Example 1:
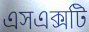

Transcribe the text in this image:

এসএক্সটি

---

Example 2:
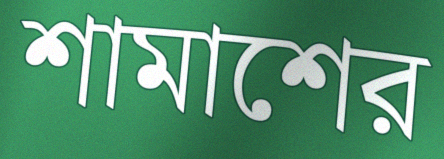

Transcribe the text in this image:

শামাশের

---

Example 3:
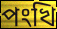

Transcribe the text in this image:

পংখি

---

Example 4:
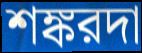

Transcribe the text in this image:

শঙ্করদা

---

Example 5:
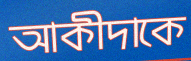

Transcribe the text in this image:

আকীদাকে